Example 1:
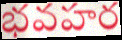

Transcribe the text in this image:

భవహర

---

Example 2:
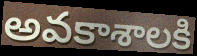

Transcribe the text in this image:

అవకాశాలకి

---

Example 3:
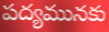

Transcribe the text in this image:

పద్యమునకు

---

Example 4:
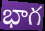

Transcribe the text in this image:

భాగ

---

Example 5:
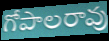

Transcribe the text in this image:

గోపాలరావు